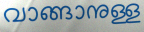
വാങ്ങാനുള്ള